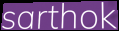
sarthok